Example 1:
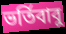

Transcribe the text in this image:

ভর্তিবাবু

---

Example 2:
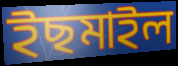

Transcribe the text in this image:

ইছমাইল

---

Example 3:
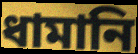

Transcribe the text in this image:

ধামানি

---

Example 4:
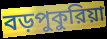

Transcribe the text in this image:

বড়পুকুরিয়া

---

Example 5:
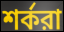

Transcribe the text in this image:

শর্করা